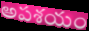
అపశయం